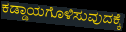
ಕಡ್ಡಾಯಗೊಳಿಸುವುದಕ್ಕೆ